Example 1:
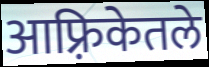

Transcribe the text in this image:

आफ़्रिकेतले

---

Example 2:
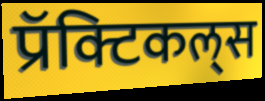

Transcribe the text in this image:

प्रॅक्टिकल्स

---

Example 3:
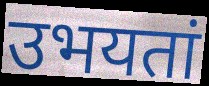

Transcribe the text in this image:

उभयतां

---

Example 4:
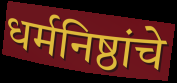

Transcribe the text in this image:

धर्मनिष्ठांचे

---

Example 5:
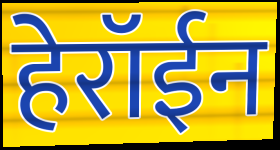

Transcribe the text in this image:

हेरॉईन